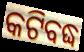
କଟିବଦ୍ଧ